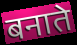
बनाते